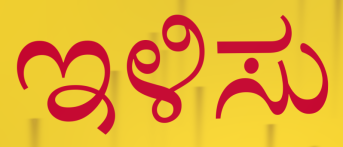
ಇಳಿಸು